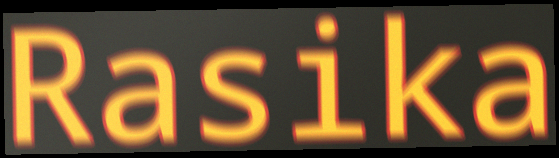
Rasika